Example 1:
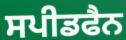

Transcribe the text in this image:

ਸਪੀਡਫੈਨ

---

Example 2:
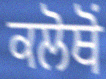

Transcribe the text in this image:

ਕਲੋਥੋਂ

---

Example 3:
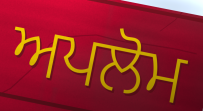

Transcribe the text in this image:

ਅਪਲੋਮ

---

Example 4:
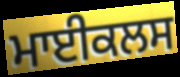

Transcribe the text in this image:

ਮਾਈਕਲਸ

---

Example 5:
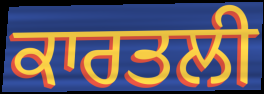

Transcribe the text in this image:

ਕਾਰਤਲੀ